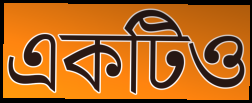
একটিও